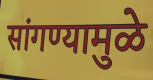
सांगण्यामुळे